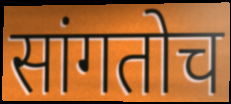
सांगतोच